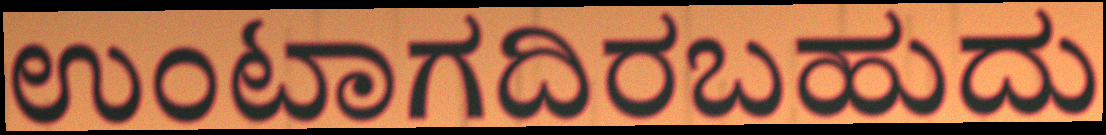
ಉಂಟಾಗದಿರಬಹುದು